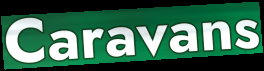
Caravans